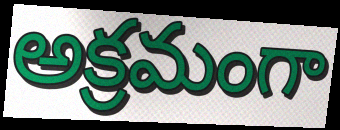
అక్రమంగా